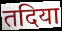
तदिया